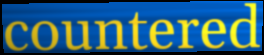
countered